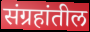
संग्रहांतील